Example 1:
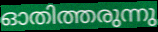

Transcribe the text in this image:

ഓതിത്തരുന്നു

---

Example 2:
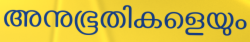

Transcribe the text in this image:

അനുഭൂതികളെയും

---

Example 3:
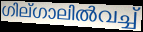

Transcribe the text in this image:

ഗില്ഗാലിൽവച്ച്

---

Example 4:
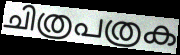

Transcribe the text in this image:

ചിത്രപത്രക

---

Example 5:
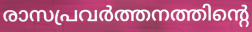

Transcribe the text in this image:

രാസപ്രവർത്തനത്തിന്റെ